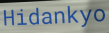
Hidankyo